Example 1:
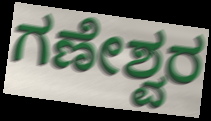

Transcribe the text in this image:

ಗಣೇಶ್ವರ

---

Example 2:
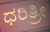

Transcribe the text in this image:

ಧರಿತ್ರೀ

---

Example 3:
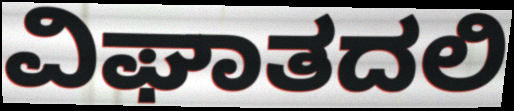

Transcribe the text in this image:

ವಿಘಾತದಲಿ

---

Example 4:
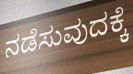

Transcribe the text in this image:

ನಡೆಸುವುದಕ್ಕೆ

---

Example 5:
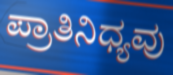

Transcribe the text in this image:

ಪ್ರಾತಿನಿಧ್ಯವು